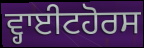
ਵ੍ਹਾਈਟਹੋਰਸ